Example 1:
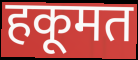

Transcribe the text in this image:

हकूमत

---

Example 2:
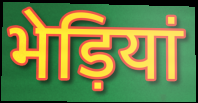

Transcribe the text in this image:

भेड़ियां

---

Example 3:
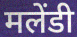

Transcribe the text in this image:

मलेंडी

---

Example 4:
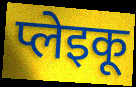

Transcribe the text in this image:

प्लेइकू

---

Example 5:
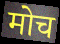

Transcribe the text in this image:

मोच